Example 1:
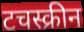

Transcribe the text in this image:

टचस्क्रीन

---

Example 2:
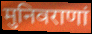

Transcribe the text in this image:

मुनिवराणां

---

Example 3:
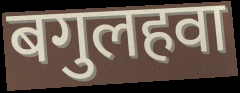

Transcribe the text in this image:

बगुलहवा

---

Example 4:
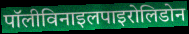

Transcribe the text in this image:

पॉलीविनाइलपाइरोलिडोन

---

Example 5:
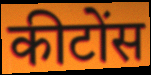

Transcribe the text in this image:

कीटोंस